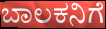
ಬಾಲಕನಿಗೆ